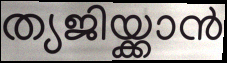
ത്യജിയ്ക്കാൻ